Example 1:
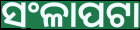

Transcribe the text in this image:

ସଂଳାପଟା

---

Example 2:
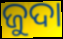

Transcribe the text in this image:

ଜୁଦା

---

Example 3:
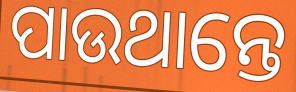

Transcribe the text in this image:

ପାଉଥାନ୍ତେ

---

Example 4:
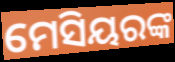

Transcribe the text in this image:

ମେସିୟରଙ୍କ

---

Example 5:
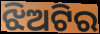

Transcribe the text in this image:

ଝିଅଟିର